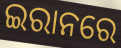
ଇରାନରେ